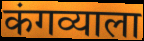
कंगव्याला